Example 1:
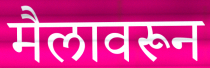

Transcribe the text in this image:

मैलावरून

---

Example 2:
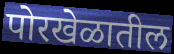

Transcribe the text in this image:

पोरखेळातील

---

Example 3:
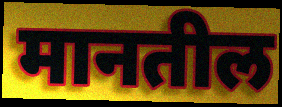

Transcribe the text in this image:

मानतील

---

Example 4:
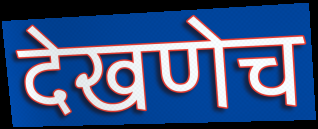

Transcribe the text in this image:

देखणेच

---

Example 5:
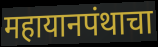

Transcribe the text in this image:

महायानपंथाचा